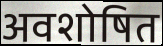
अवशोषित